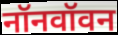
नॉनवॉवन